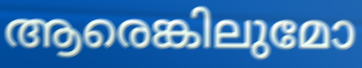
ആരെങ്കിലുമോ